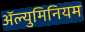
ॲल्युमिनियम